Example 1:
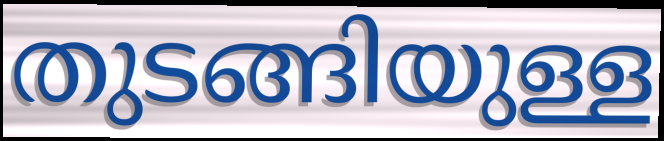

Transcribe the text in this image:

തുടങ്ങിയുള്ള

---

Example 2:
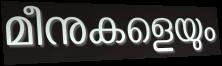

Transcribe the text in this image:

മീനുകളെയും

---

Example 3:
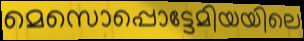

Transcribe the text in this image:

മെസൊപ്പൊട്ടേമിയയിലെ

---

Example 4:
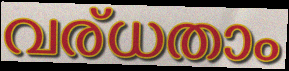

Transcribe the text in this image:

വര്ധതാം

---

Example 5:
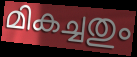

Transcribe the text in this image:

മികച്ചതും